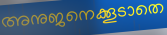
അനുജനെക്കൂടാതെ